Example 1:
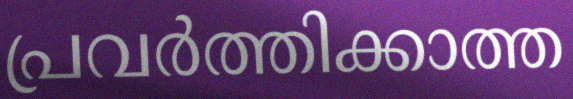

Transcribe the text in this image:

പ്രവർത്തിക്കാത്ത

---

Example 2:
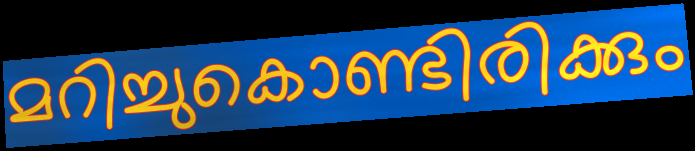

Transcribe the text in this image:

മറിച്ചുകൊണ്ടിരിക്കും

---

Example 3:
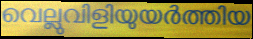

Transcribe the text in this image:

വെല്ലുവിളിയുയർത്തിയ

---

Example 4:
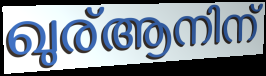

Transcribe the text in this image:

ഖുര്ആനിന്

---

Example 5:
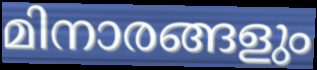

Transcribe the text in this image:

മിനാരങ്ങളും